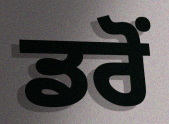
ਡਰੋਂ